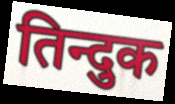
तिन्दुक